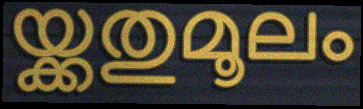
യ്ക്കതുമൂലം